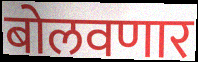
बोलवणार